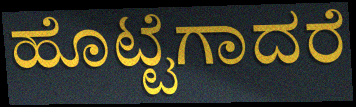
ಹೊಟ್ಟೆಗಾದರೆ